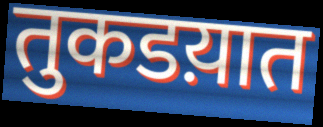
तुकडय़ात